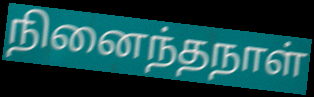
நினைந்தநாள்